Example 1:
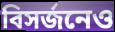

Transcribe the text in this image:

বিসর্জনেও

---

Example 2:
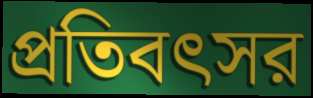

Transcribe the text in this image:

প্রতিবৎসর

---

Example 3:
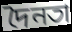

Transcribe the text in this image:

দৈনতা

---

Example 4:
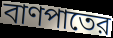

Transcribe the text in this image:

বাণপাতের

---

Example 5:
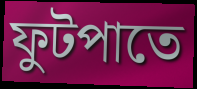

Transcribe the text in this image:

ফুটপাতে